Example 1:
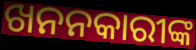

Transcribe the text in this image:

ଖନନକାରୀଙ୍କ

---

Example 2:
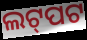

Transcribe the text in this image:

ଲଟ୍‌ପଟ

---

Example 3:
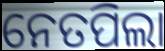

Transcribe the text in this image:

ନେତପିଲା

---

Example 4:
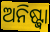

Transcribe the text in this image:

ଅନିଷ୍ଟ୍ୱା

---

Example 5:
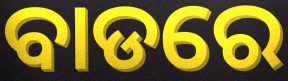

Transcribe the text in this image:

ବାଡରେ